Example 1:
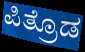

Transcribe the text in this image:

ಪಿತ್ರೊಡ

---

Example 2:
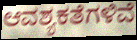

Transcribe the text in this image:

ಆವಶ್ಯಕತೆಗಳಿವೆ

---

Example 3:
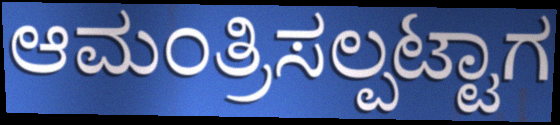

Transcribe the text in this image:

ಆಮಂತ್ರಿಸಲ್ಪಟ್ಟಾಗ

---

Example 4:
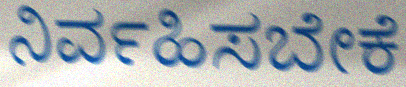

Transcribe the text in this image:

ನಿರ್ವಹಿಸಬೇಕೆ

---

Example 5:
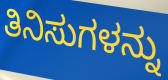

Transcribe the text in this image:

ತಿನಿಸುಗಳನ್ನು